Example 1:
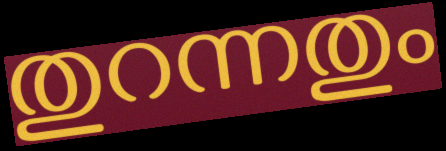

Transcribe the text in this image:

തുറന്നതും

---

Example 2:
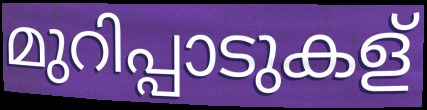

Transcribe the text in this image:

മുറിപ്പാടുകള്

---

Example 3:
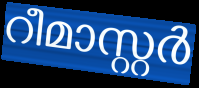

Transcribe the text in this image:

റീമാസ്റ്റർ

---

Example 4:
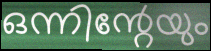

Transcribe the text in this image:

ഒന്നിന്റേയും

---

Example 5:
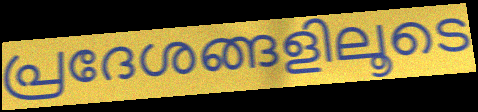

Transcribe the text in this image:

പ്രദേശങ്ങളിലൂടെ